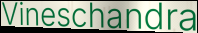
Vineschandra